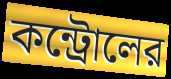
কন্ট্রোলের